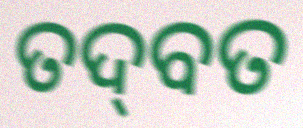
ତଦ୍‍ବତ